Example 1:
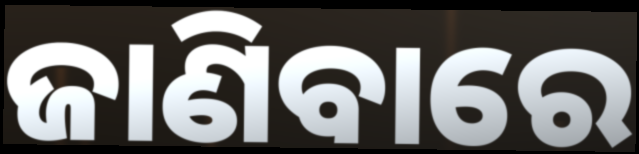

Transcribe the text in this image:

ଜାଣିବାରେ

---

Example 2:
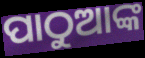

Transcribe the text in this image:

ପାଠୁଆଙ୍କ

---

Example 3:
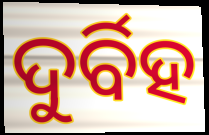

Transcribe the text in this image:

ଦୁର୍ବିହ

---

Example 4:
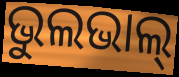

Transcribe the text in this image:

ଭୁଲଭାଲ୍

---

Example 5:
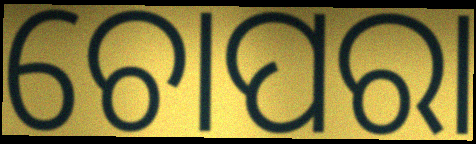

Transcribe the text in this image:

ଚୋପରା